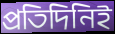
প্রতিদিনিই